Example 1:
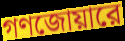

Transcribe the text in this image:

গণজোয়ারে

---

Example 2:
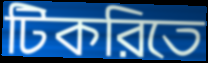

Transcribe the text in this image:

টিকরিতে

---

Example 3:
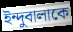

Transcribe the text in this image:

ইন্দুবালাকে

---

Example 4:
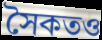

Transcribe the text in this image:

সৈকতও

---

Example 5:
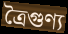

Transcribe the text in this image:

ত্রৈগুণ্য